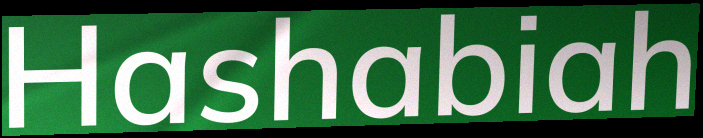
Hashabiah